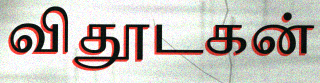
விதூடகன்